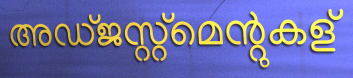
അഡ്ജസ്റ്റ്മെന്റുകള്